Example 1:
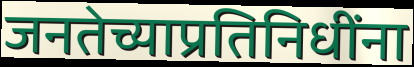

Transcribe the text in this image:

जनतेच्याप्रतिनिधींना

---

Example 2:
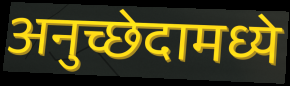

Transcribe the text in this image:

अनुच्छेदामध्ये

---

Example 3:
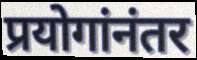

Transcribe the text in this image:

प्रयोगांनंतर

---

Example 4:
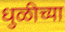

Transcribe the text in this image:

धुळीच्या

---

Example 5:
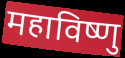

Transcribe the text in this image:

महाविष्णु